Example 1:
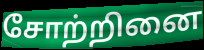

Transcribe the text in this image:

சோற்றினை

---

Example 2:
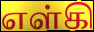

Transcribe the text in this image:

எள்கி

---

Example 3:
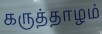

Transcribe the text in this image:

கருத்தாழம்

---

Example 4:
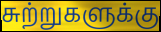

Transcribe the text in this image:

சுற்றுகளுக்கு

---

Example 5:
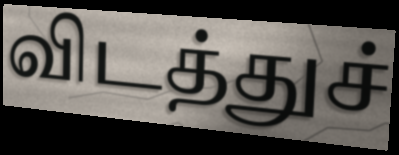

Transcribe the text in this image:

விடத்துச்